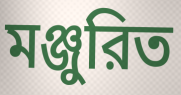
মঞ্জুরিত